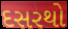
દસરથો